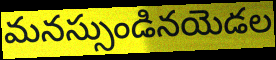
మనస్సుండినయెడల